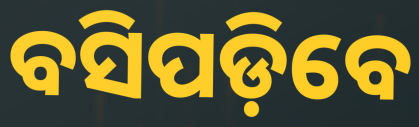
ବସିପଡ଼ିବେ